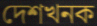
দেশখনক